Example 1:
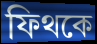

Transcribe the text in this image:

ফিথকে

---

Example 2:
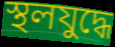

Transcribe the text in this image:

স্থলযুদ্ধে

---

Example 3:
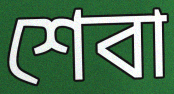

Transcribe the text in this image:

শেবা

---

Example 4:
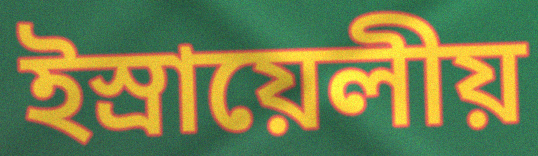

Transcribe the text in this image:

ইস্রায়েলীয়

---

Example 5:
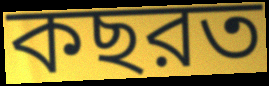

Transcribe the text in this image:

কছরত